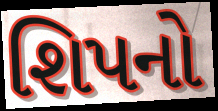
શિપનો